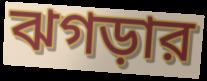
ঝগড়ার